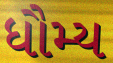
ધૌમ્ય